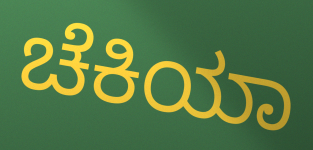
ಚೆಕಿಯಾ